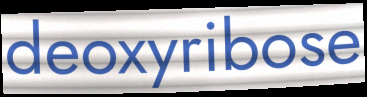
deoxyribose